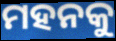
ମହନକୁ